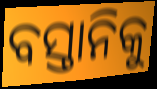
ବସ୍ତାନିକୁ